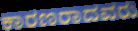
ಕಾರಣರಾದವರು